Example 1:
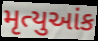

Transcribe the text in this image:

મૃત્યુઆંક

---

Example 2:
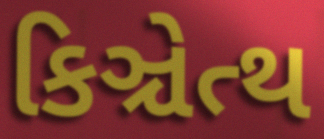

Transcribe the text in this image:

કિઞ્ચેત્થ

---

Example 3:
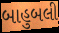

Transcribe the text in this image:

બાહુબલી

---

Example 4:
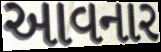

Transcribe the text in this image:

આવનાર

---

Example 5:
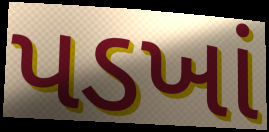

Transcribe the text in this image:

પડખાં